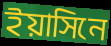
ইয়াসিনে